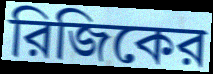
রিজিকের